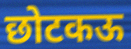
छोटकऊ